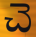
చె